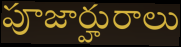
పూజార్హురాలు